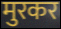
मुरकर